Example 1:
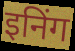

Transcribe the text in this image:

इनिंग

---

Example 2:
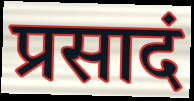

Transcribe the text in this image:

प्रसादं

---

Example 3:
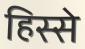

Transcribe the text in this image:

हिस्‍से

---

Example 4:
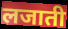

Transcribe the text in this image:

लजाती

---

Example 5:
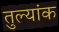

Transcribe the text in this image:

तुल्यांक